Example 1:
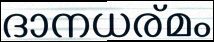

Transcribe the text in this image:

ദാനധര്മം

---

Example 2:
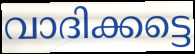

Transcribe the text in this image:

വാദിക്കട്ടെ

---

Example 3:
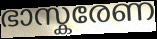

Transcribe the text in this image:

ഭാസ്കരേണ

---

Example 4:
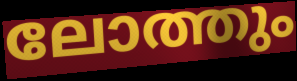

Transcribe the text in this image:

ലോത്തും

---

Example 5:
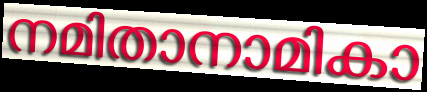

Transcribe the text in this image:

നമിതാനാമികാ